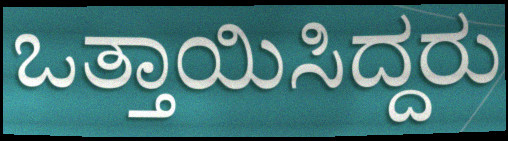
ಒತ್ತಾಯಿಸಿದ್ದರು